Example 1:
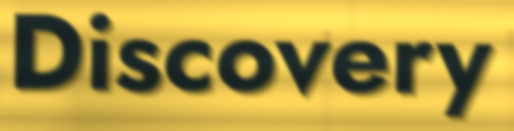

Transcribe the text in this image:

Discovery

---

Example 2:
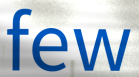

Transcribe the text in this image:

few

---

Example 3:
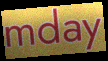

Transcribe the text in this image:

mday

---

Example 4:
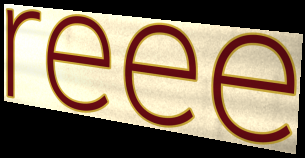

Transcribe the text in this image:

reee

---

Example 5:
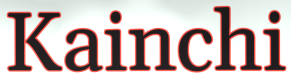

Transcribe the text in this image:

Kainchi